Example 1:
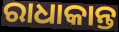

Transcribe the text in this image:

ରାଧାକାନ୍ତ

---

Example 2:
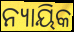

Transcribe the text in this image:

ନ୍ୟାୟିକ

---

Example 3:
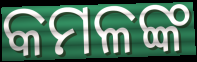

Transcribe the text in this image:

କମଳଙ୍କ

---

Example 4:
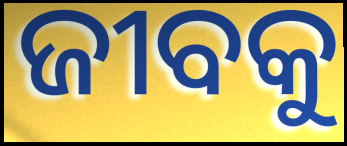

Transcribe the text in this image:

ଜୀବକୁ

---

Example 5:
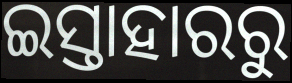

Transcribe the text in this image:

ଇସ୍ତାହାରରୁ